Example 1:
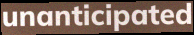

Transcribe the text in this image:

unanticipated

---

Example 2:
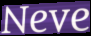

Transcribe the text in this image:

Neve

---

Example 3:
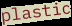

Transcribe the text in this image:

plastic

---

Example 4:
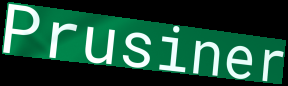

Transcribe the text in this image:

Prusiner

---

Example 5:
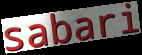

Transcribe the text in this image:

sabari